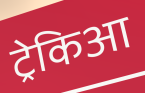
ट्रेकिआ